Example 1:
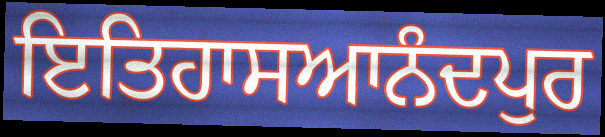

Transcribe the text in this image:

ਇਤਿਹਾਸਆਨੰਦਪੁਰ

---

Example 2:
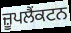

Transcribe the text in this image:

ਜ਼ੂਪਲੈਂਕਟਨ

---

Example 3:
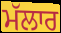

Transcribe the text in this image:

ਮੱਲਾਰ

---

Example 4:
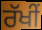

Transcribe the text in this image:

ਰੱਖੀਂ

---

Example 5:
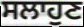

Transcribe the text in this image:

ਸਲਾਹੁਣ